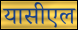
यासीएल